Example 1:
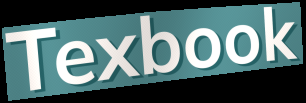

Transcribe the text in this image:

Texbook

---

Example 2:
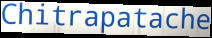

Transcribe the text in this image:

Chitrapatache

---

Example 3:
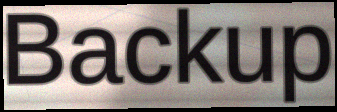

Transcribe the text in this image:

Backup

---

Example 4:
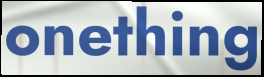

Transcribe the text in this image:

onething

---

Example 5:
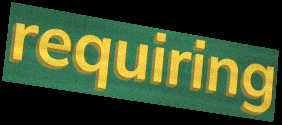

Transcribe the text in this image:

requiring